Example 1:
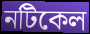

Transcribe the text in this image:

নটিকেল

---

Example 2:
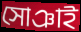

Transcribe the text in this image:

সোঞাই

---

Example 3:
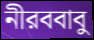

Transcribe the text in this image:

নীরববাবু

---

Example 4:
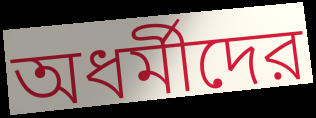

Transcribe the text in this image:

অধর্মীদের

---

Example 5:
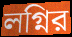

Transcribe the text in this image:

লগ্নির